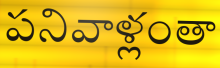
పనివాళ్లంతా